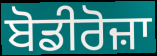
ਬੋਡੀਰੋਜ਼ਾ